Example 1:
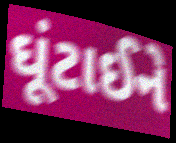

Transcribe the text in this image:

ઘૂંટાઈને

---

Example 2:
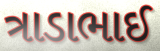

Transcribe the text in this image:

ત્રાડાભાઈ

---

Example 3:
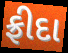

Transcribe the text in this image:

ફ્રીદા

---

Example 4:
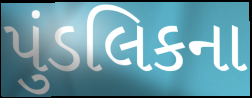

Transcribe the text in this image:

પુંડલિકના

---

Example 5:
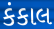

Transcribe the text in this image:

કંકાલ